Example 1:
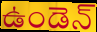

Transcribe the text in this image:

ఉండెన్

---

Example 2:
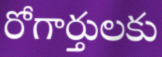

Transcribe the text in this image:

రోగార్తులకు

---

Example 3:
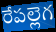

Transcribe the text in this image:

రేపల్లెగ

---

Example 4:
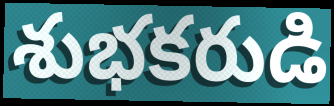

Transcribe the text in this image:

శుభకరుడి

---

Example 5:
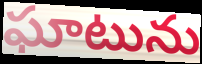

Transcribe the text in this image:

ఘాటును